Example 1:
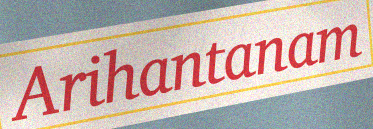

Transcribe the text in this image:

Arihantanam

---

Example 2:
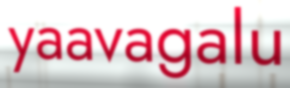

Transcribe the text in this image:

yaavagalu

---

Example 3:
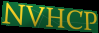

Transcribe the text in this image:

NVHCP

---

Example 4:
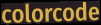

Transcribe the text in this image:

colorcode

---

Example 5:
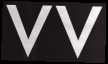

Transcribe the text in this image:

vv